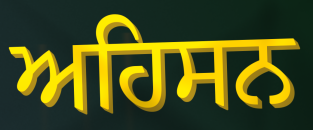
ਅਹਿਸਨ